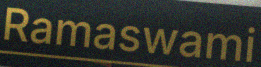
Ramaswami